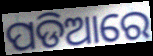
ପଡିଆରେ